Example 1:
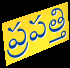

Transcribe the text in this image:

ప్రపత్తి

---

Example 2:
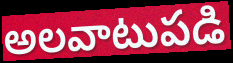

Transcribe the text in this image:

అలవాటుపడి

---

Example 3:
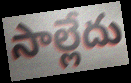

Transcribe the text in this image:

సాల్లేదు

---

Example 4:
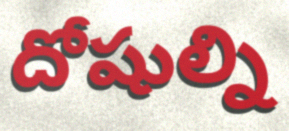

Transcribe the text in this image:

దోషుల్ని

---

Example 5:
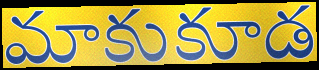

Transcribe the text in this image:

మాకుకూడ